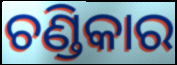
ଚଣ୍ଡିକାର